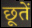
छूतें